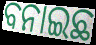
ବନାଇଛ